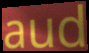
aud